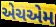
એચએમ